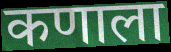
कणाला